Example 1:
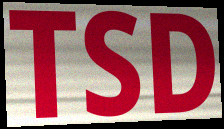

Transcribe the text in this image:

TSD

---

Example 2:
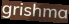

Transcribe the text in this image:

grishma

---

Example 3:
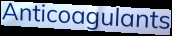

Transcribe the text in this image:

Anticoagulants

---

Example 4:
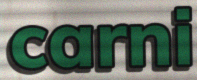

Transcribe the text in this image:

carni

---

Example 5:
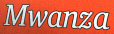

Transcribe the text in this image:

Mwanza